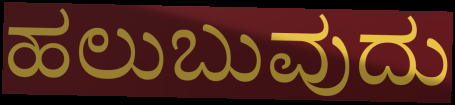
ಹಲುಬುವುದು